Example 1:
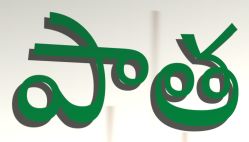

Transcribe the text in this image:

పాత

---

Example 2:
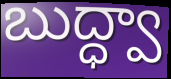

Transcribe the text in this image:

బుద్ధ్వా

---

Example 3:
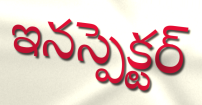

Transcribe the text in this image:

ఇనస్పెక్టర్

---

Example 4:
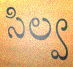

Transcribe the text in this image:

సిల్వ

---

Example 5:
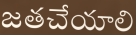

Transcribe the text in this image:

జతచేయాలి